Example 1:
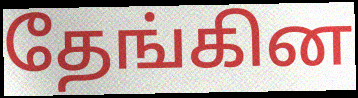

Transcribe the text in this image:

தேங்கின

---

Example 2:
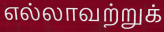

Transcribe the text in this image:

எல்லாவற்றுக்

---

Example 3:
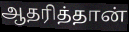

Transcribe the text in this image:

ஆதரித்தான்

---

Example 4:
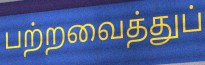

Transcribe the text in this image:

பற்றவைத்துப்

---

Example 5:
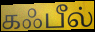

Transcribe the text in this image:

கஃபீல்